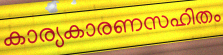
കാര്യകാരണസഹിതം